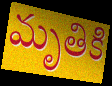
మృతికి